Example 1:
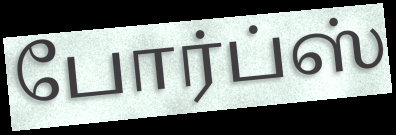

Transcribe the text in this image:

போர்ப்ஸ்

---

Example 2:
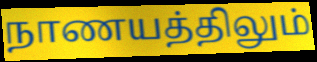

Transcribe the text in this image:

நாணயத்திலும்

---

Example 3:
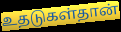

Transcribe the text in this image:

உதடுகள்தான்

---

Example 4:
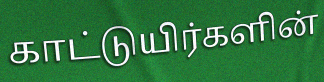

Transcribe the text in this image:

காட்டுயிர்களின்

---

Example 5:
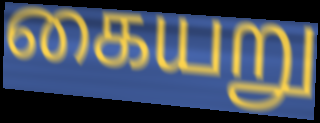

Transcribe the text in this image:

கையறு